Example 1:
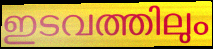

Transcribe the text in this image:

ഇടവത്തിലും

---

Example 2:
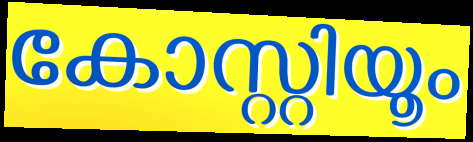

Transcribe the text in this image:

കോസ്റ്റിയൂം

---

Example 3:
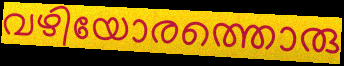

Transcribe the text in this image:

വഴിയോരത്തൊരു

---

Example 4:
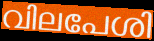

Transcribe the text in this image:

വിലപേശി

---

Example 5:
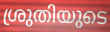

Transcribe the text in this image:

ശ്രുതിയുടെ